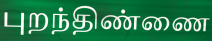
புறந்திண்ணை